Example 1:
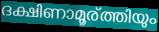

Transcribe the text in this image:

ദക്ഷിണാമൂര്ത്തിയും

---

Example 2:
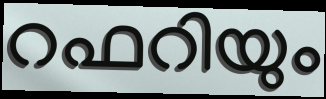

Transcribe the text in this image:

റഫറിയും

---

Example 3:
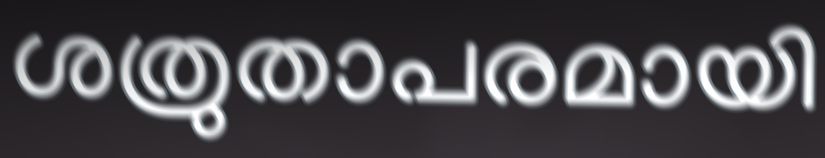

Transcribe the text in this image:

ശത്രുതാപരമായി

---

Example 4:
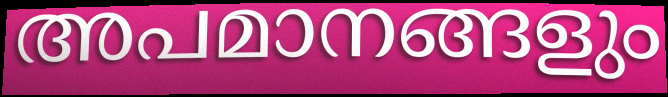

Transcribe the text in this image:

അപമാനങ്ങളും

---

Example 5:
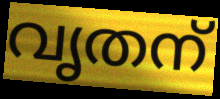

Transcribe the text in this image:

വൃതന്